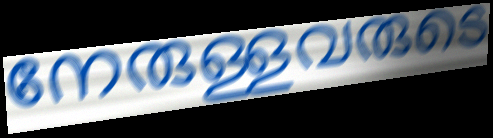
നേരുള്ളവരുടെ